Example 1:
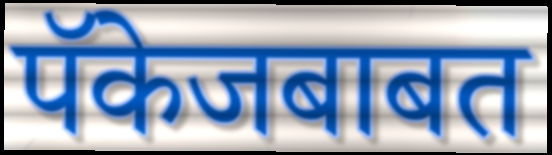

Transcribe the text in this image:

पॅकेजबाबत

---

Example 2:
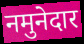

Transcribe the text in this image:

नमुनेदार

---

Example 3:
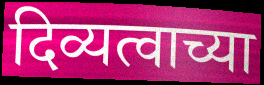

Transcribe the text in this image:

दिव्यत्वाच्या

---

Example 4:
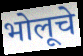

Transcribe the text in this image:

भोलूचे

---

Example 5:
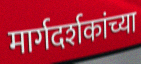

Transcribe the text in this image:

मार्गदर्शकांच्या